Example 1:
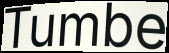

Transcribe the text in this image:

Tumbe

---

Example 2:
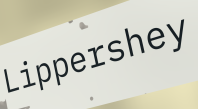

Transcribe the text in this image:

Lippershey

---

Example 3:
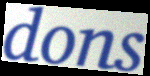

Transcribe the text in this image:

dons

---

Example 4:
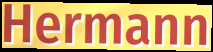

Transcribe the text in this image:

Hermann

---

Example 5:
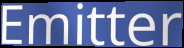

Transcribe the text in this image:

Emitter